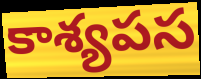
కాశ్యపస